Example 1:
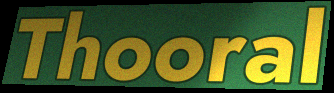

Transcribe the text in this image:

Thooral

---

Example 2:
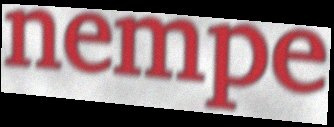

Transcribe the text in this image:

nempe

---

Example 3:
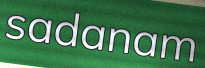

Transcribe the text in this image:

sadanam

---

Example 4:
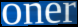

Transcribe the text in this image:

oner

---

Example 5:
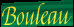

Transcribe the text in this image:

Bouleau